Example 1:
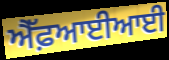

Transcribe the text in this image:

ਐੱਫ਼ਆਈਆਈ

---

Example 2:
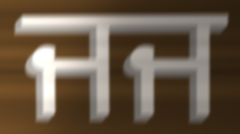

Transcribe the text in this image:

ਜਜ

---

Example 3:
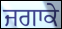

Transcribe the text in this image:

ਜਗਾਕੇ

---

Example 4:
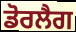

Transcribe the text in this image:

ਡੋਰਲੈਗ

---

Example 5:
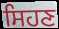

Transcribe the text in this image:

ਸਿਹਣ